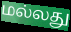
மல்லது